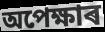
অপেক্ষাৰ